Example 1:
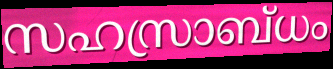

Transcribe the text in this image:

സഹസ്രാബ്ധം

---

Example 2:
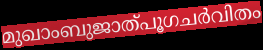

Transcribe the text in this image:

മുഖാംബുജാത്പൂഗചർവിതം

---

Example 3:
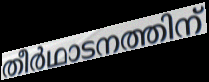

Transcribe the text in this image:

തീർഥാടനത്തിന്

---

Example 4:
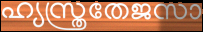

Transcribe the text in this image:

ഹ്യസ്ത്രതേജസാ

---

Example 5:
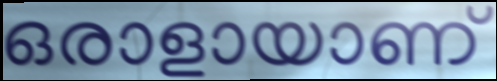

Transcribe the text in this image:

ഒരാളായാണ്